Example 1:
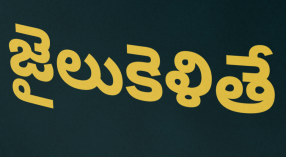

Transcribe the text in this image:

జైలుకెళితే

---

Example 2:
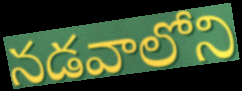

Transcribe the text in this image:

నడవాలోని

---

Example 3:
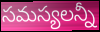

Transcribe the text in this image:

సమస్యలన్నీ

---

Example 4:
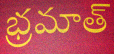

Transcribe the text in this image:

భ్రమాత్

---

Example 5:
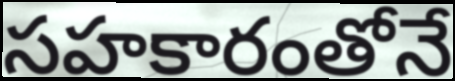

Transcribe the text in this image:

సహకారంతోనే